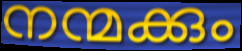
നന്മക്കും